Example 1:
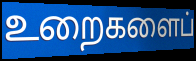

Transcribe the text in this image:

உறைகளைப்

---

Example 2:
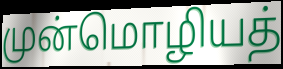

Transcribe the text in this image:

முன்மொழியத்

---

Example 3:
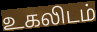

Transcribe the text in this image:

உகலிடம்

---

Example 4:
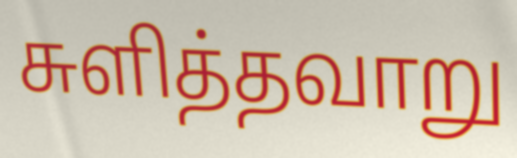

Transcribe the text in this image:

சுளித்தவாறு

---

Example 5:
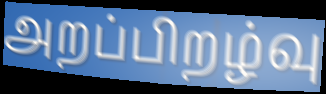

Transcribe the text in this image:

அறப்பிறழ்வு